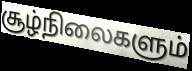
சூழ்நிலைகளும்